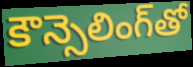
కౌన్సెలింగ్‌తో